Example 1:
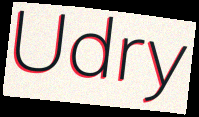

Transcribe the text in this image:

Udry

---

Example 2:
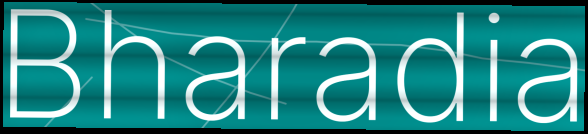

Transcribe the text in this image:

Bharadia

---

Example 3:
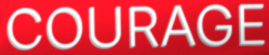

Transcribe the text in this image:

COURAGE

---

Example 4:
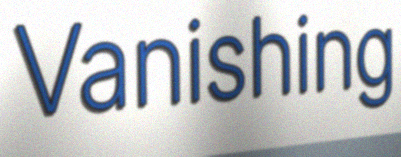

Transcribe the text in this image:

Vanishing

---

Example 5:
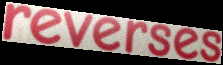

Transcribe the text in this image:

reverses